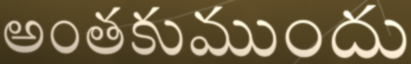
అంతకుముందు